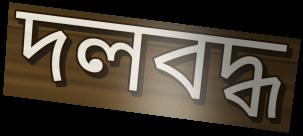
দলবদ্ধ